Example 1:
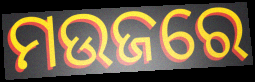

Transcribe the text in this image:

ମଉଜରେ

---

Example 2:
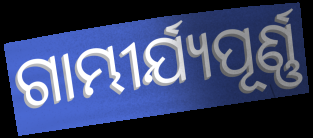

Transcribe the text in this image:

ଗାମ୍ଭୀର୍ଯ୍ୟପୂର୍ଣ୍ଣ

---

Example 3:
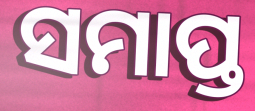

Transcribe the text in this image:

ସମାପ୍ତ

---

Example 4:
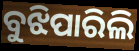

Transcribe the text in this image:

ବୁଝିପାରିଲି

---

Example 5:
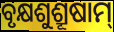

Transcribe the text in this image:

ବୃକ୍ଷଶୁଶ୍ରୂଷାମ୍